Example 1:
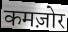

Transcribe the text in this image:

कमज़ोर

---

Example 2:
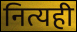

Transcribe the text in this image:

नित्यही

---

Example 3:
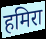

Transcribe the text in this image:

हमिरा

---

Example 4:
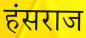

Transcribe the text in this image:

हंसराज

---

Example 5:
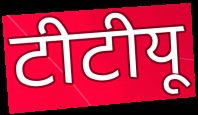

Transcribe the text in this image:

टीटीयू